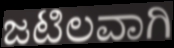
ಜಟಿಲವಾಗಿ